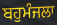
ਬਹੁਮੰਜਲਾ